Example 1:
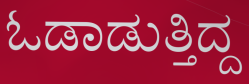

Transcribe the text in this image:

ಓಡಾಡುತ್ತಿದ್ದ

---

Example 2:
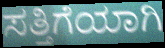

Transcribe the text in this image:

ಸತ್ತಿಗೆಯಾಗಿ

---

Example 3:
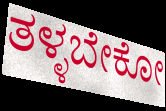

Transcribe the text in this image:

ತಳ್ಳಬೇಕೋ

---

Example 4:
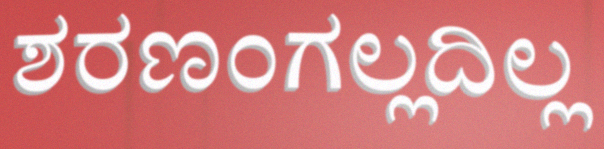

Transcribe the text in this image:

ಶರಣಂಗಲ್ಲದಿಲ್ಲ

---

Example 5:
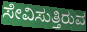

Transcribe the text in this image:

ಸೇವಿಸುತ್ತಿರುವ